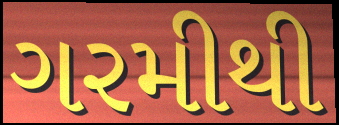
ગરમીથી